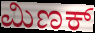
ಮಿಣಕ್